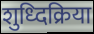
शुध्दिक्रिया